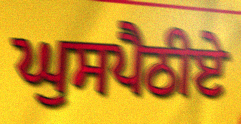
ਘੁਸਪੈਠੀਏ